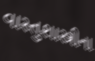
વાસ્તુશાસ્ત્રીના